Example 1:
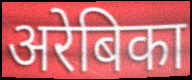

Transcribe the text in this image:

अरेबिका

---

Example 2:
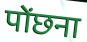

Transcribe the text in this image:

पोंछना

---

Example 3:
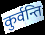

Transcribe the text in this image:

कुर्वन्ति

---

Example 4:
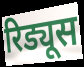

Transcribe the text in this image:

रिड्यूस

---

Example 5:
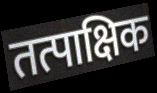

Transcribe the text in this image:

तत्पाक्षिक